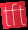
tft